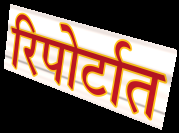
रिपोर्टात